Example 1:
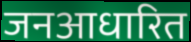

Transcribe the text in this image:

जनआधारित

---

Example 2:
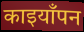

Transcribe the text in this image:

काइयाँपन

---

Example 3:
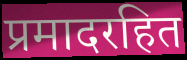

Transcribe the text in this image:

प्रमादरहित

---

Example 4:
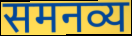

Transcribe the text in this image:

समनव्य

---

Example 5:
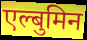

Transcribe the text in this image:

एल्बुमिन